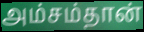
அம்சம்தான்